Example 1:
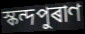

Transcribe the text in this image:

স্কন্দপুৰাণ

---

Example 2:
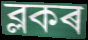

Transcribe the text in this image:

ব্লকৰ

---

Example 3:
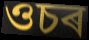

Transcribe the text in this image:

ওচৰ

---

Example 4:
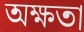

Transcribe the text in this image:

অক্ষতা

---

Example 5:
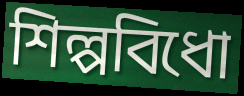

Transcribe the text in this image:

শিল্পবিধো